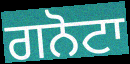
ਗਨੋਟਾ